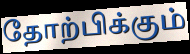
தோற்பிக்கும்